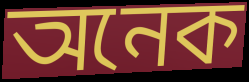
অনেক